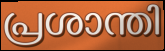
പ്രശാന്തി